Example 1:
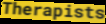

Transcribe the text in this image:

Therapists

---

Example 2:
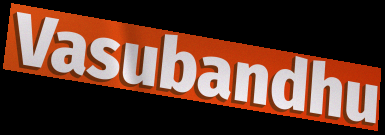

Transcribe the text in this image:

Vasubandhu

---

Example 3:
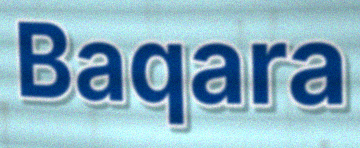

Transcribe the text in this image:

Baqara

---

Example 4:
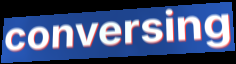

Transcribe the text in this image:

conversing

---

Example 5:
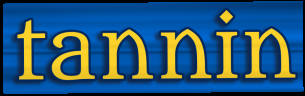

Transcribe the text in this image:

tannin